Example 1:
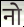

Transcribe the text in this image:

नो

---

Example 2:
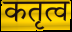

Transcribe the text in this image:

कतृत्व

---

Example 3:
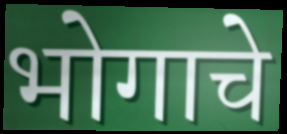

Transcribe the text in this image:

भोगाचे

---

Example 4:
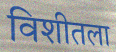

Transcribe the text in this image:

विशीतला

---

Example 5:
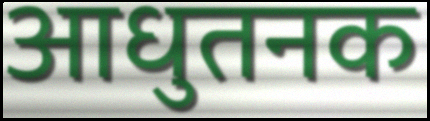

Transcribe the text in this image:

आधुतनक